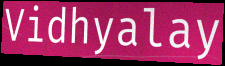
Vidhyalay